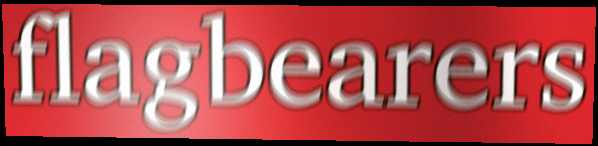
flagbearers